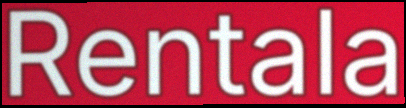
Rentala